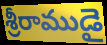
శ్రీరాముడై